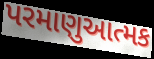
પરમાણુઆત્મક